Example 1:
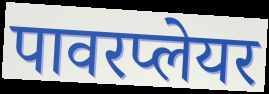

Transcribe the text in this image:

पावरप्लेयर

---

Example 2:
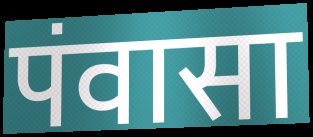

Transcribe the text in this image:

पंवासा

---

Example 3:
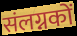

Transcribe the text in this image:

संलग्नकों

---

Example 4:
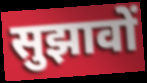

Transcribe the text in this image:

सुझावों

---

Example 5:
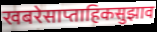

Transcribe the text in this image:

खबरेसाप्ताहिकसुझाव